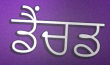
ਡੈਂਚਡ